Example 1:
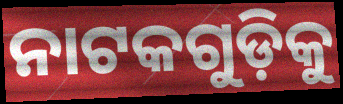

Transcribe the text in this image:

ନାଟକଗୁଡ଼ିକୁ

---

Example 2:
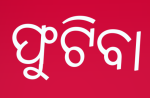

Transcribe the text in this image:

ଫୁଟିବା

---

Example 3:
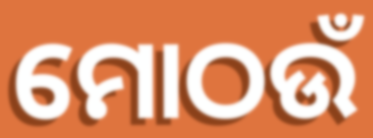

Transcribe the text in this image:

ମୋଠଉଁ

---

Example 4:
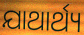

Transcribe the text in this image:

ଯାଥାର୍ଥ୍ୟ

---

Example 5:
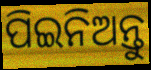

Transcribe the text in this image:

ପିଇନିଅନ୍ତୁ